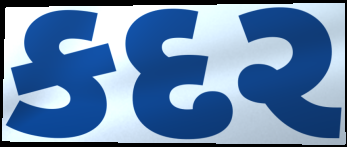
કદર